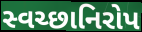
સ્વચ્છાનિરોપ